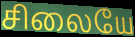
சிலையே